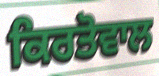
ਕਿਰਤੋਵਾਲ